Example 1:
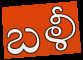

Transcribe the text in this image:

బళీ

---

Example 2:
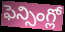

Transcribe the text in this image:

ఫెన్సింగ్లో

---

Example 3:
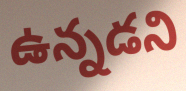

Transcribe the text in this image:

ఉన్నడని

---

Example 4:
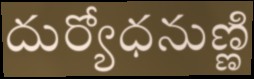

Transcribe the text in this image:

దుర్యోధనుణ్ణి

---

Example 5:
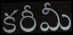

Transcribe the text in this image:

కరీమీ